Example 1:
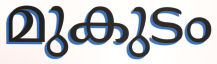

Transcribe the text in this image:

മുകുടം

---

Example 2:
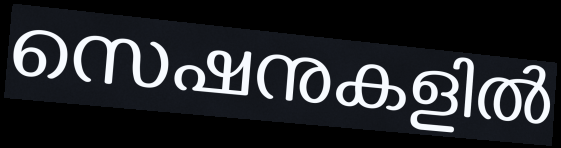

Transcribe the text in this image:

സെഷനുകളിൽ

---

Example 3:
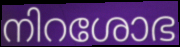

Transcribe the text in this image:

നിറശോഭ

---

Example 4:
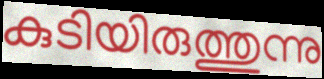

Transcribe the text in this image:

കുടിയിരുത്തുന്നു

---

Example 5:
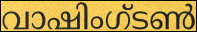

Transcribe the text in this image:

വാഷിംഗ്ടൺ